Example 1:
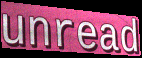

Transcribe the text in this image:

unread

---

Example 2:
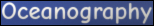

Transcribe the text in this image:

Oceanography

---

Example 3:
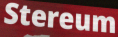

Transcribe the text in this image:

Stereum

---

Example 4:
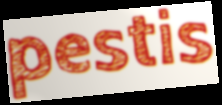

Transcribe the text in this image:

pestis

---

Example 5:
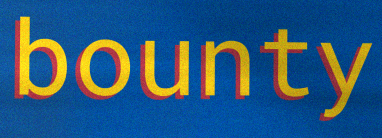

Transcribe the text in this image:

bounty